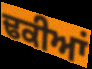
ਢਕੀਆਂ